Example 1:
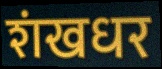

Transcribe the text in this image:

शंखधर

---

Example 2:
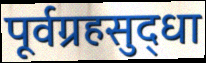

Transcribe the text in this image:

पूर्वग्रहसुद्धा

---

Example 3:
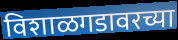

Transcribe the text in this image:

विशाळगडावरच्या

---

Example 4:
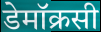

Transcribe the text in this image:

डेमॉक्रसी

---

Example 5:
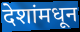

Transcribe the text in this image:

देशांमधून